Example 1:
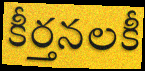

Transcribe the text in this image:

కీర్తనలకీ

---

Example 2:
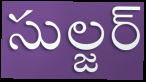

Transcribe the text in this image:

సుల్జర్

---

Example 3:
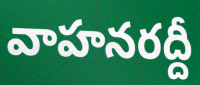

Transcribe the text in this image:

వాహనరద్దీ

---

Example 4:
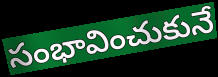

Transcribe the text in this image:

సంభావించుకునే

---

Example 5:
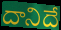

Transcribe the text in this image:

దానిదే